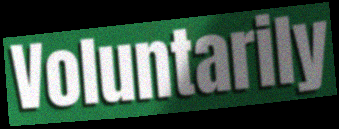
Voluntarily